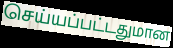
செய்யப்பட்டதுமான